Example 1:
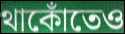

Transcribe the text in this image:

থাকোঁতেও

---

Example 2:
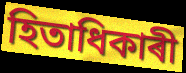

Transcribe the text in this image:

হিতাধিকাৰী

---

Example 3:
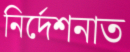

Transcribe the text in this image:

নিৰ্দেশনাত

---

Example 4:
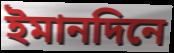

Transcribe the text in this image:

ইমানদিনে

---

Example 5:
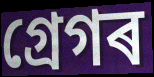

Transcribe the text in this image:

গ্ৰেগৰ